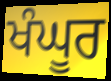
ਖੰਘੂਰ